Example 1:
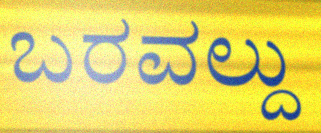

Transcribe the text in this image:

ಬರವಲ್ದು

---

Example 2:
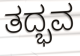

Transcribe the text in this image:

ತದ್ಭವ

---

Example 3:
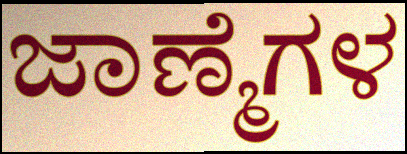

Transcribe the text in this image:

ಜಾಣ್ಮೆಗಳ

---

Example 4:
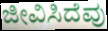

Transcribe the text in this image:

ಜೀವಿಸಿದೆವು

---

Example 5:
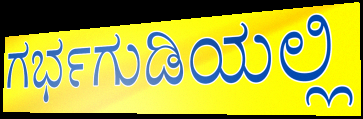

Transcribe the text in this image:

ಗರ್ಭಗುಡಿಯಲ್ಲಿ